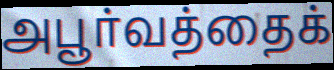
அபூர்வத்தைக்